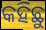
କହିଛୁ